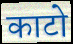
काटो